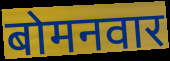
बोमनवार